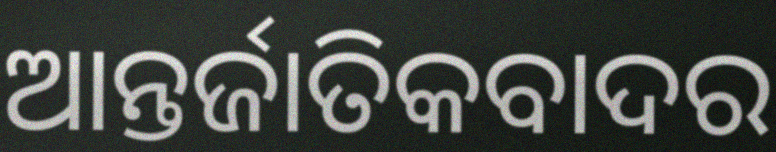
ଆନ୍ତର୍ଜାତିକବାଦର